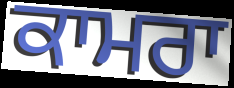
ਕਾਮਰਾ